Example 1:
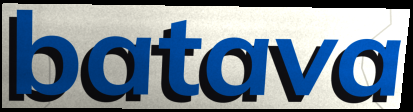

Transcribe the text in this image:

batava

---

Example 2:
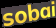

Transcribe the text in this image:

sobai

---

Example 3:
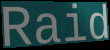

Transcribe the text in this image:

Raid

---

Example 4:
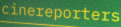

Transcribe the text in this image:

cinereporters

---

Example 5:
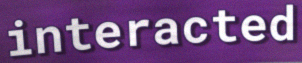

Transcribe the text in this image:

interacted